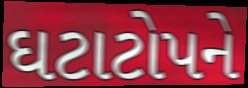
ઘટાટોપને